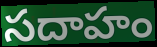
సదాహం